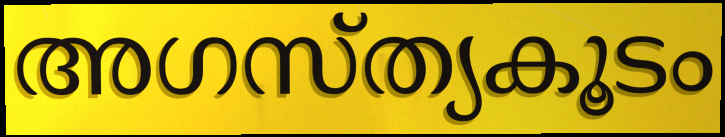
അഗസ്ത്യകൂടം